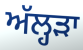
ਅੱਲ੍ਹੜਾ